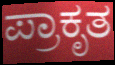
ಪ್ರಾಕೃತ